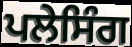
ਪਲੇਸਿੰਗ